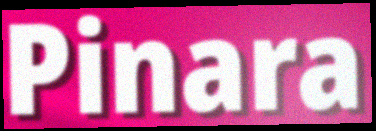
Pinara